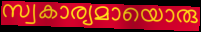
സ്വകാര്യമായൊരു